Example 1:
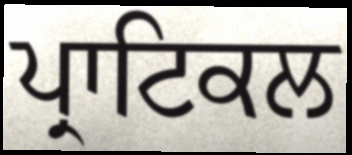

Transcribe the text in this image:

ਪ੍ਰਾਟਿਕਲ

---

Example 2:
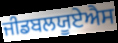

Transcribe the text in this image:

ਜੀਡਬਲਯੂਏਐਸ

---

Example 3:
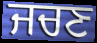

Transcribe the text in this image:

ਜਚਣ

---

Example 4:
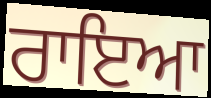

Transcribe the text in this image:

ਰਾਇਆ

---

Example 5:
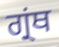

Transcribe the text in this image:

ਗ੍ਰਂਥ